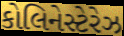
કોલિનેસ્ટેરેઝ